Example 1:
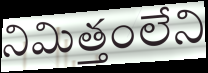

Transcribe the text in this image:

నిమిత్తంలేని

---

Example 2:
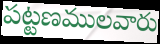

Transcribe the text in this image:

పట్టణములవారు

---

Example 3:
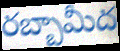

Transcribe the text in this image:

రబ్బామీద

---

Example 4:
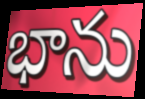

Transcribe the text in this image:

భాను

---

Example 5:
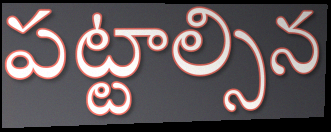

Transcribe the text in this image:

పట్టాల్సిన